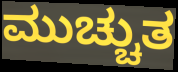
ಮುಚ್ಚುತ